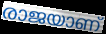
രാജയാണ്